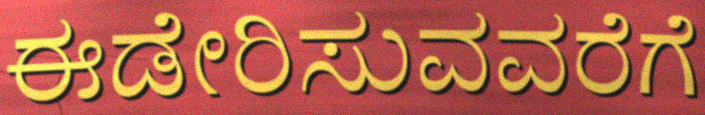
ಈಡೇರಿಸುವವರೆಗೆ